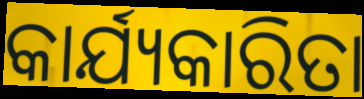
କାର୍ଯ୍ୟକାରିତା